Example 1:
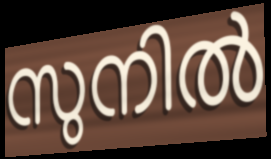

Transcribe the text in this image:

സുനിൽ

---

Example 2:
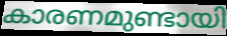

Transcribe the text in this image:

കാരണമുണ്ടായി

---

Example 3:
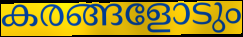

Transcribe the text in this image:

കരങ്ങളോടും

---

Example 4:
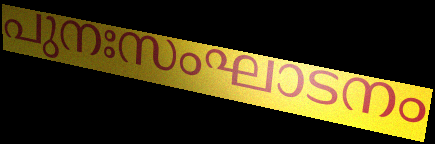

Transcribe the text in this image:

പുനഃസംഘാടനം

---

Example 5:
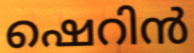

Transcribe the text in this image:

ഷെറിൻ